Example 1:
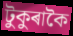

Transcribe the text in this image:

টুকুৰাকৈ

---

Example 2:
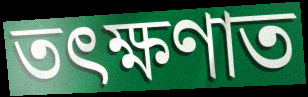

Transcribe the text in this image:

তৎক্ষণাত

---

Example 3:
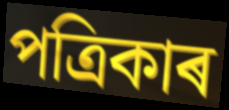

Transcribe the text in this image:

পত্ৰিকাৰ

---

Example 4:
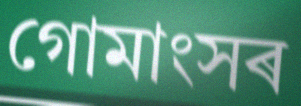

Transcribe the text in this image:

গোমাংসৰ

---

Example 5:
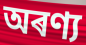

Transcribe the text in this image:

অৰণ্য